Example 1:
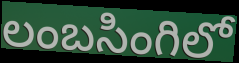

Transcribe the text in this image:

లంబసింగిలో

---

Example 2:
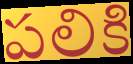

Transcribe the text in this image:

పలికి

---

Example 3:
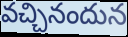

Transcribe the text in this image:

వచ్చినందున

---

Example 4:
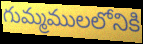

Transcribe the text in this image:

గుమ్మములలోనికి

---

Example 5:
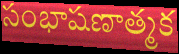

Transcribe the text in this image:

సంభాషణాత్మక